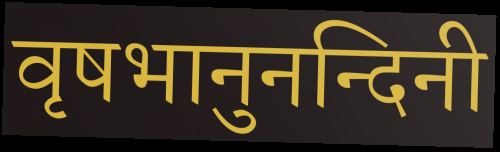
वृषभानुनन्दिनी